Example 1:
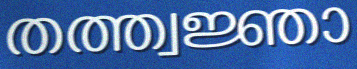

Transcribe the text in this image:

തത്ത്വജ്ഞാ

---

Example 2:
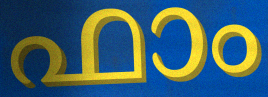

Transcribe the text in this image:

ഫാം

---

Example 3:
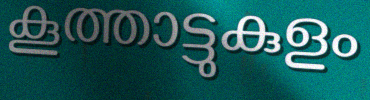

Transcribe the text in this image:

കൂത്താട്ടുകുളം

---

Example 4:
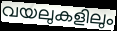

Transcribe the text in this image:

വയലുകളിലും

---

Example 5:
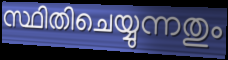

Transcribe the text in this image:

സ്ഥിതിചെയ്യുന്നതും